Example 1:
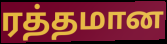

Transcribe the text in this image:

ரத்தமான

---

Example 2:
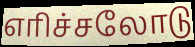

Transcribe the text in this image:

எரிச்சலோடு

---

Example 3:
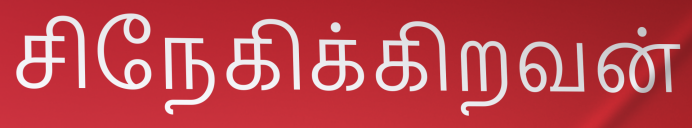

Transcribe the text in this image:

சிநேகிக்கிறவன்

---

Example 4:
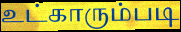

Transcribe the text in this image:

உட்காரும்படி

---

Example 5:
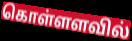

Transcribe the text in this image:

கொள்ளளவில்